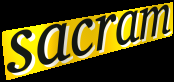
sacram